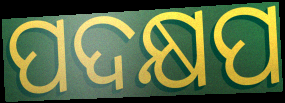
ପଦକ୍ଷପ